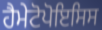
ਹੈਮੇਟੋਪੋਇਸਿਸ